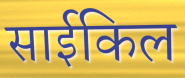
साईकिल